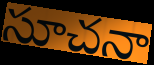
సూచనా